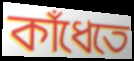
কাঁধেতে